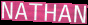
NATHAN